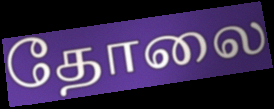
தோலை